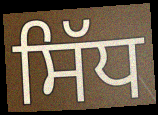
ਸਿੱਧ